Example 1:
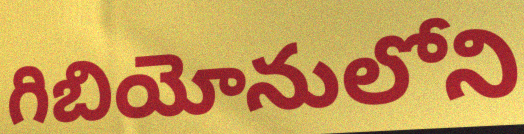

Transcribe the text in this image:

గిబియోనులోని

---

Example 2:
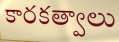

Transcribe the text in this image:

కారకత్వాలు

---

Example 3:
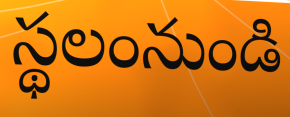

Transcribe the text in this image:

స్థలంనుండి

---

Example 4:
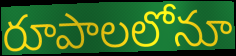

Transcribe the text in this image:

రూపాలలోనూ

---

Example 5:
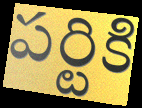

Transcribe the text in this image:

పర్టికి